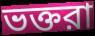
ভক্তরা